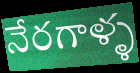
నేరగాళ్ళ